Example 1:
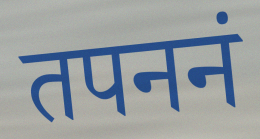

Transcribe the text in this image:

तपननं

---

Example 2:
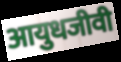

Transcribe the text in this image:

आयुधजीवी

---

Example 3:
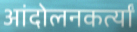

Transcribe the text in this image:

आंदोलनकर्त्यां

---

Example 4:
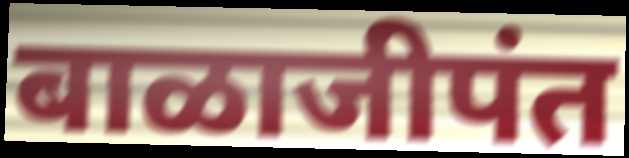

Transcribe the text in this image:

बाळाजीपंत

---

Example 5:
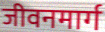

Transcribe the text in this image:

जीवनमार्ग